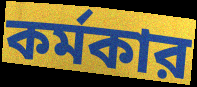
কর্মকার